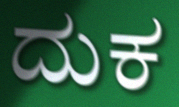
ದುಕ